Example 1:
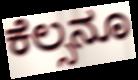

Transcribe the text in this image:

ಕೆಲ್ಸನೂ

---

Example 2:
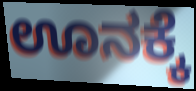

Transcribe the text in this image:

ಊನಕ್ಕೆ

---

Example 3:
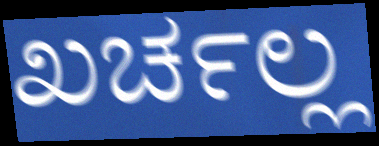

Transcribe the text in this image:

ಖರ್ಚಲ್ಲ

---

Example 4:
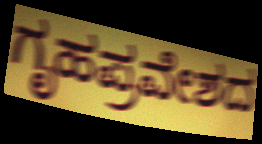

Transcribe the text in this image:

ಗೃಹಪ್ರವೇಶದ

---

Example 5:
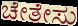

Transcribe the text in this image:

ಚೇತೇಸು